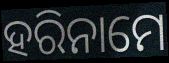
ହରିନାମେ